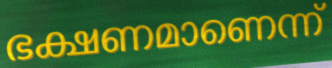
ഭക്ഷണമാണെന്ന്